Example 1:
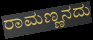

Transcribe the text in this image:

ರಾಮಣ್ಣನದು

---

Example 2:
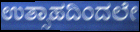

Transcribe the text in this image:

ಉತ್ಸಾಹದಿಂದಲೇ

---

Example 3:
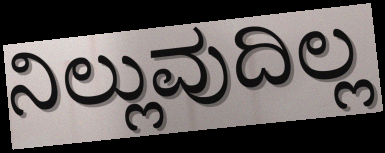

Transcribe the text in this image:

ನಿಲ್ಲುವುದಿಲ್ಲ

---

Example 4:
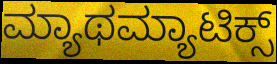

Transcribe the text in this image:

ಮ್ಯಾಥಮ್ಯಾಟಿಕ್ಸ್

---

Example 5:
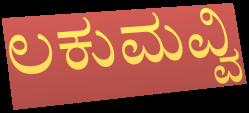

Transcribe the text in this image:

ಲಕುಮವ್ವಿ